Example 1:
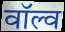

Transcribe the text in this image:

वॉल्व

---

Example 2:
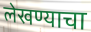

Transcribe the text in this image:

लेखण्याचा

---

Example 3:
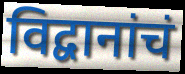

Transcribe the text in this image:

विद्वानांचं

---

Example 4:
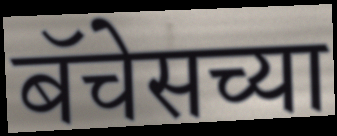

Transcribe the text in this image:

बॅचेसच्या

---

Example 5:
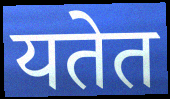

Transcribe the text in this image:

यतेत